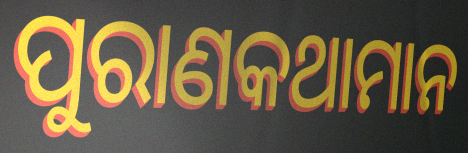
ପୁରାଣକଥାମାନ